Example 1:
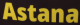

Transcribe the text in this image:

Astana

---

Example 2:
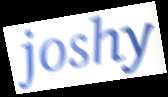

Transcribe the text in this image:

joshy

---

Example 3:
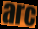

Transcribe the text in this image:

arc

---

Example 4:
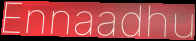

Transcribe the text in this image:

Ennaadhu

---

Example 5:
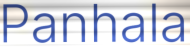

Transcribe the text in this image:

Panhala